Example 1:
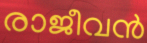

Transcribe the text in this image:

രാജീവൻ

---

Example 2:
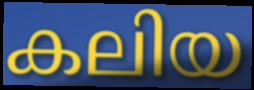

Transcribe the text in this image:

കലിയ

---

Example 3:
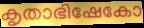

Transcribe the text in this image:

കൃതാഭിഷേകോ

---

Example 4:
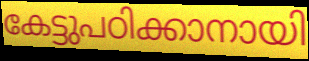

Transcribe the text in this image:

കേട്ടുപഠിക്കാനായി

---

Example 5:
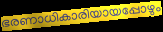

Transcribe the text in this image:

ഭരണാധികാരിയായപ്പോഴും